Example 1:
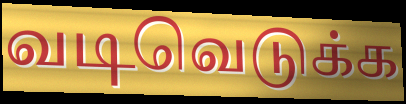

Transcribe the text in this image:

வடிவெடுக்க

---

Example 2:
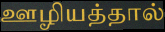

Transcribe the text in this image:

ஊழியத்தால்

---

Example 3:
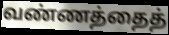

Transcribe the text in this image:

வண்ணத்தைத்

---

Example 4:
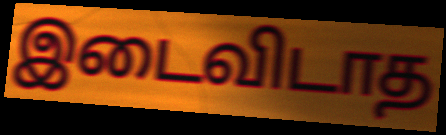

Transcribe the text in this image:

இடைவிடாத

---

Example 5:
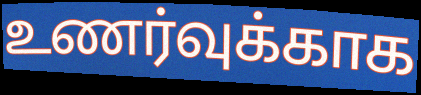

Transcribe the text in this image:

உணர்வுக்காக